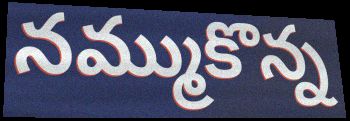
నమ్ముకొన్న